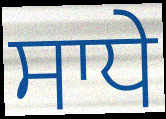
ਸਾਧੇ